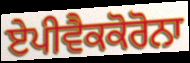
ਏਪੀਵੈਕਕੋਰੋਨਾ